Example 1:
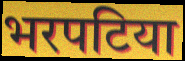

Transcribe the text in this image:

भरपटिया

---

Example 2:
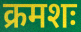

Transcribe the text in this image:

क्रमशः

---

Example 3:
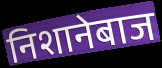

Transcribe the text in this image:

निशानेबाज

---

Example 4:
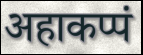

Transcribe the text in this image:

अहाकप्पं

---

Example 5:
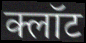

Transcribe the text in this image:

क्‍लॉट